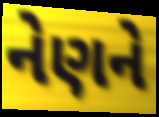
નેણને